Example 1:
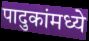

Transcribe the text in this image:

पादुकांमध्ये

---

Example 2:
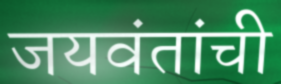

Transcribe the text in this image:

जयवंतांची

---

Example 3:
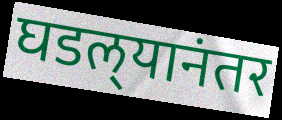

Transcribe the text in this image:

घडल्यानंतर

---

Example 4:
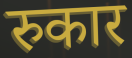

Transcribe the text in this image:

रुकार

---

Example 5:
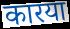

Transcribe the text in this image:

कारया